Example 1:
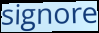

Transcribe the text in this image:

signore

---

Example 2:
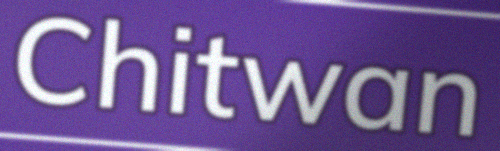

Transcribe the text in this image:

Chitwan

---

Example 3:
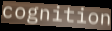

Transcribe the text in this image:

cognition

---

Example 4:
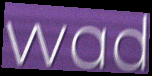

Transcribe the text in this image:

wad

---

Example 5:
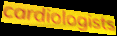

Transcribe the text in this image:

cardiologists